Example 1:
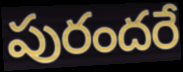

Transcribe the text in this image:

పురందరే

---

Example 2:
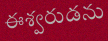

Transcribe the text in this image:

ఈశ్వరుడను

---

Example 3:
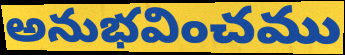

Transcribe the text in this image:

అనుభవించము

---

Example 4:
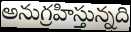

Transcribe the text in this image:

అనుగ్రహిస్తున్నది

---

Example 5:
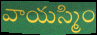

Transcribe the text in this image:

వాయస్మిం